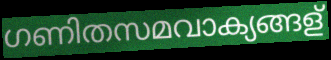
ഗണിതസമവാക്യങ്ങള്